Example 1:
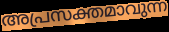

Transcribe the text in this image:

അപ്രസക്തമാവുന്ന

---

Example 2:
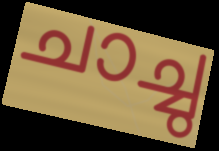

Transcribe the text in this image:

ചാച്ചു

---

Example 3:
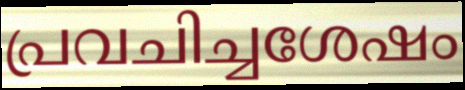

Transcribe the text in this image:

പ്രവചിച്ചശേഷം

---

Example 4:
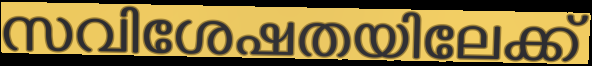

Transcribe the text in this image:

സവിശേഷതയിലേക്ക്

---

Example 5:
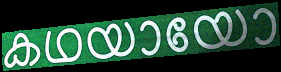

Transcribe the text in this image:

കഥയായോ